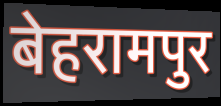
बेहरामपुर